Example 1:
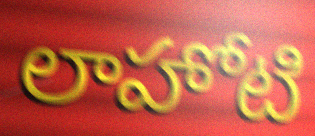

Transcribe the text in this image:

లాహోటి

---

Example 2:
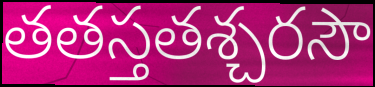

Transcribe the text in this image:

తతస్తతశ్చరసౌ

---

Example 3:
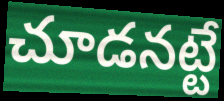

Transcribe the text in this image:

చూడనట్టే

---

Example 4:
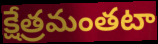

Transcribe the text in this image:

క్షేత్రమంతటా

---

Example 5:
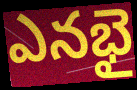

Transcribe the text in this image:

ఎనభై